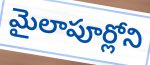
మైలాపూర్లోని